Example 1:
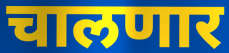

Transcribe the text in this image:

चालणार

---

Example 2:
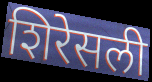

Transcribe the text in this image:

शिरेसली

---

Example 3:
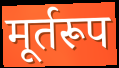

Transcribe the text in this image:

मूर्तरूप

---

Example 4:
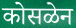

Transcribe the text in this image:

कोसळेन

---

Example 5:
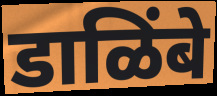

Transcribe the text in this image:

डाळिंबे